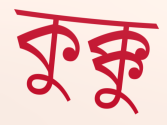
কুক্কু